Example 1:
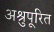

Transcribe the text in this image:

अश्रुपूरित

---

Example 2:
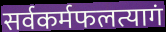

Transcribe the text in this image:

सर्वकर्मफलत्यागं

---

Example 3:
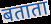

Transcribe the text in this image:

बताता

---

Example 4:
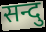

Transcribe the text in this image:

सन्दु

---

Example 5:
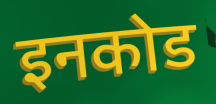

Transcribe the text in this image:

इनकोड